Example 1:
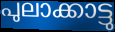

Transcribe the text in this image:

പുലാക്കാട്ടു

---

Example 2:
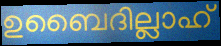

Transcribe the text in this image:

ഉബൈദില്ലാഹ്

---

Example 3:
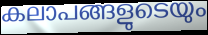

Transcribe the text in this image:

കലാപങ്ങളുടെയും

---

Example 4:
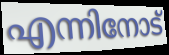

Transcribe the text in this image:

എന്നിനോട്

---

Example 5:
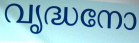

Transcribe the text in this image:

വൃദ്ധനോ